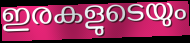
ഇരകളുടെയും